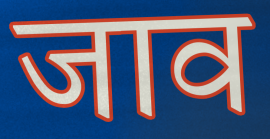
जाव